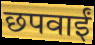
छपवाईं